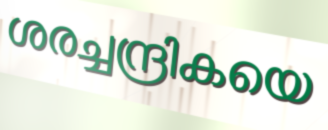
ശരച്ചന്ദ്രികയെ